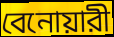
বেনোয়ারী